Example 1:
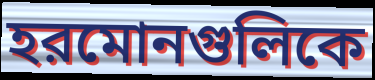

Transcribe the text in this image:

হরমোনগুলিকে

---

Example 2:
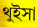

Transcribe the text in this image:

থুইসা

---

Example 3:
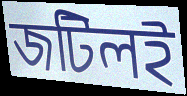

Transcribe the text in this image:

জটিলই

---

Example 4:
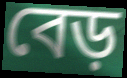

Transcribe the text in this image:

বেড়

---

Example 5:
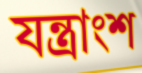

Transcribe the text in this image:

যন্ত্রাংশ